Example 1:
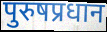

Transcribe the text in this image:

पुरुषप्रधान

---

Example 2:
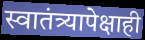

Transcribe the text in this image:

स्वातंत्र्यापेक्षाही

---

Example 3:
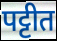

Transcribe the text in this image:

पट्टीत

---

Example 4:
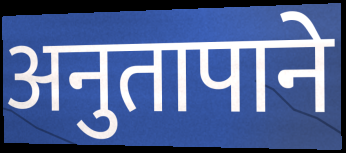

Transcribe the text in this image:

अनुतापाने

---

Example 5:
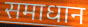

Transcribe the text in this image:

समाधान